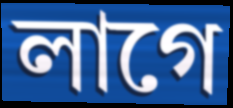
লাগে